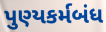
પુણ્યકર્મબંધ